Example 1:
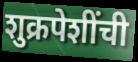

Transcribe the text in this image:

शुक्रपेशींची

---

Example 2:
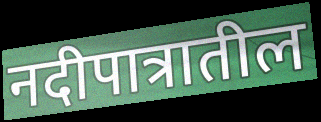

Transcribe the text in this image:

नदीपात्रातील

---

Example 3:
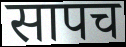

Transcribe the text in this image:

सापच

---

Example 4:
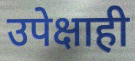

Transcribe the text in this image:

उपेक्षाही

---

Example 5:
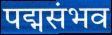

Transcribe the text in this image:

पद्मसंभव